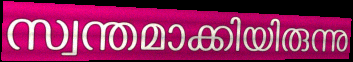
സ്വന്തമാക്കിയിരുന്നു